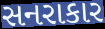
સનરાકાર